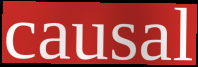
causal